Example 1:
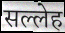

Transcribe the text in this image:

सल्लेह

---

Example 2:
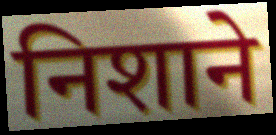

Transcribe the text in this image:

निशाने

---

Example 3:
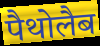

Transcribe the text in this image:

पैथोलैब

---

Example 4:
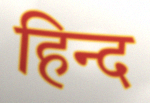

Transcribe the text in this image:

हिन्द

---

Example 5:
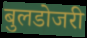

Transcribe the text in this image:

बुलडोजरी